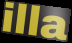
illa